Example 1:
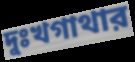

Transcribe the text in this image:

দুঃখগাথার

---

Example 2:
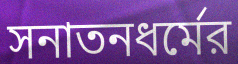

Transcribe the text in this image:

সনাতনধর্মের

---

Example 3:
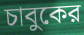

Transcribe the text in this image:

চাবুকের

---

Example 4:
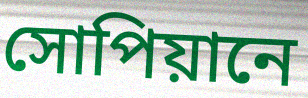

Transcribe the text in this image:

সোপিয়ানে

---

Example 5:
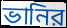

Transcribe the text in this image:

ভানির